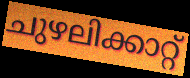
ചുഴലിക്കാറ്റ്